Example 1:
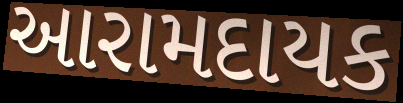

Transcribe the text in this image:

આરામદાયક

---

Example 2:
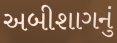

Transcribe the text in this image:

અબીશાગનું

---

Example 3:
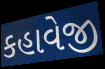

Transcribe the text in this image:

કહાવેજી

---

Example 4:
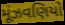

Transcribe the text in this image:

મૂંઝવણિયો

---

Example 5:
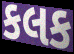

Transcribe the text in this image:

કલક